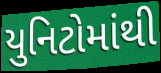
યુનિટોમાંથી